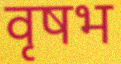
वृषभ